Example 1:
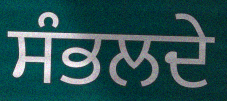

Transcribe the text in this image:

ਸੰਭਲਦੇ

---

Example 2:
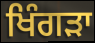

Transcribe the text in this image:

ਖਿੰਗੜਾ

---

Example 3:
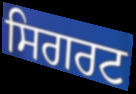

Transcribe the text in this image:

ਸਿਗਰਟ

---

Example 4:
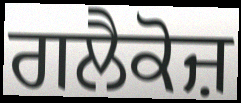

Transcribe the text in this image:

ਗਲੈਕੋਜ਼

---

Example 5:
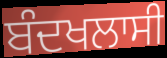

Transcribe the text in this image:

ਬੰਦਖਲਾਸੀ